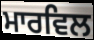
ਮਾਰਵਿਲ